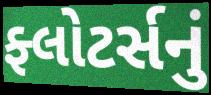
ફ્લોટર્સનું